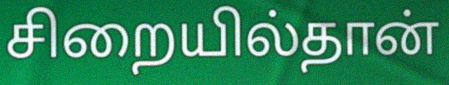
சிறையில்தான்